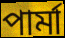
পার্মা